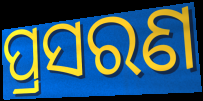
ପ୍ରସରଣ